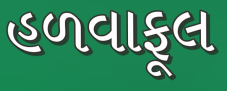
હળવાફૂલ